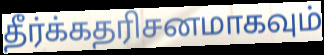
தீர்க்கதரிசனமாகவும்